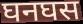
घनघस